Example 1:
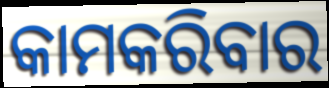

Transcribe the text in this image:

କାମକରିବାର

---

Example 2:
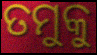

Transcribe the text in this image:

ତମୁକୁ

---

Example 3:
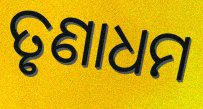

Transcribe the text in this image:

ତୃଣାଧମ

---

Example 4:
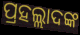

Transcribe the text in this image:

ପ୍ରହଲ୍ଲାଦଙ୍କ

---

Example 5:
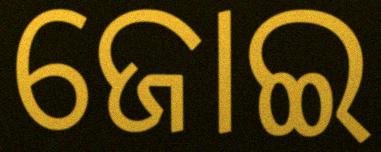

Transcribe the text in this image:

ଜୋଇ